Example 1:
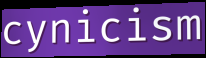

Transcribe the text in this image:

cynicism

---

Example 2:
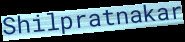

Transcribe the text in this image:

Shilpratnakar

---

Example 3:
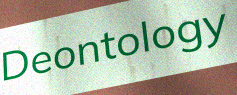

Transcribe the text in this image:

Deontology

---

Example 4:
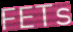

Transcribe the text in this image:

FETs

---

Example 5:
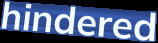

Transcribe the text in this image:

hindered